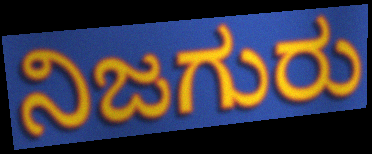
ನಿಜಗುರು